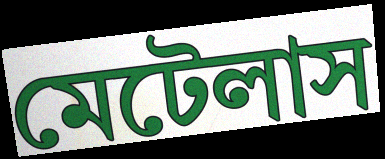
মেটেলাস